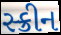
સ્ક્રીન